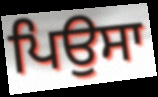
ਪਿਉਸਾ